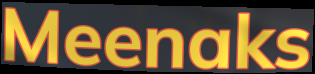
Meenaks